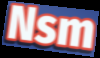
Nsm